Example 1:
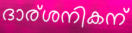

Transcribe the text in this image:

ദാര്ശനികന്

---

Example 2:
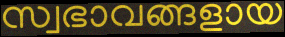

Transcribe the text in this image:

സ്വഭാവങ്ങളായ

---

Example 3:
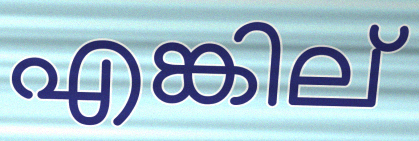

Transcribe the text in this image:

എങ്കില്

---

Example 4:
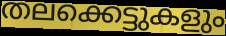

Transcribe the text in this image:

തലക്കെട്ടുകളും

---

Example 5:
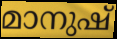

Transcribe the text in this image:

മാനുഷ്